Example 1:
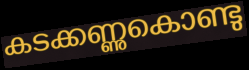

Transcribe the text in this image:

കടക്കണ്ണുകൊണ്ടു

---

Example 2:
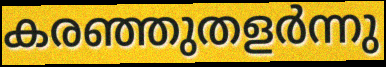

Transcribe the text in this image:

കരഞ്ഞുതളർന്നു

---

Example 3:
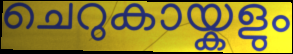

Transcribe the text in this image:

ചെറുകായ്കളും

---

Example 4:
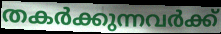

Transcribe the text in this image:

തകർക്കുന്നവർക്ക്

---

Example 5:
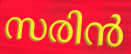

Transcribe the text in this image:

സരിൻ